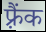
फ़्रैंक